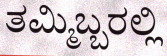
ತಮ್ಮಿಬ್ಬರಲ್ಲಿ